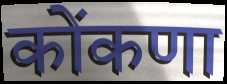
कोंकणा